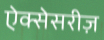
ऐक्सेसरीज़